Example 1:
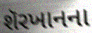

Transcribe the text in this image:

શૅરખાનના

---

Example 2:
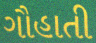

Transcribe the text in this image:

ગૌહાતી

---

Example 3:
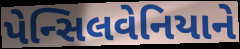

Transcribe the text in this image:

પેન્સિલવેનિયાને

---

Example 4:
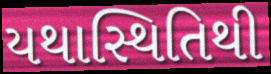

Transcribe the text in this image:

યથાસ્થિતિથી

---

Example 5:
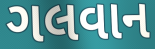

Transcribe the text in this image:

ગલવાન